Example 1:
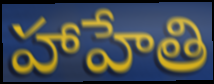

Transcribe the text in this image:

హాహేతి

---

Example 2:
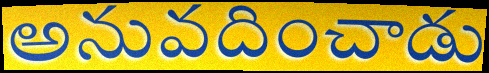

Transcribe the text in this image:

అనువదించాడు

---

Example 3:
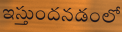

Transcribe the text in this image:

ఇస్తుందనడంలో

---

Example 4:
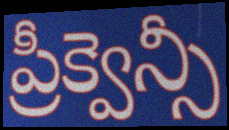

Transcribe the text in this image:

ప్రీక్వెన్సీ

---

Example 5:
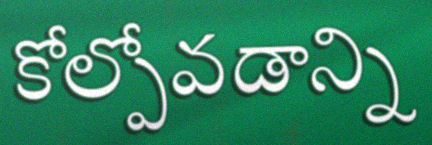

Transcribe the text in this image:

కోల్పోవడాన్ని